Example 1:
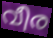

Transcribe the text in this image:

വീര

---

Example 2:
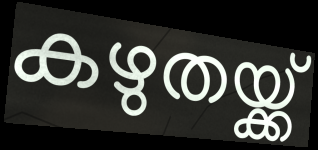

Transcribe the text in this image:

കഴുതയ്ക്ക്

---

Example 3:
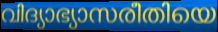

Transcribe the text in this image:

വിദ്യാഭ്യാസരീതിയെ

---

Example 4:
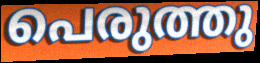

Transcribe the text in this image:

പെരുത്തു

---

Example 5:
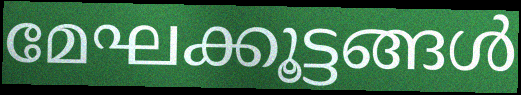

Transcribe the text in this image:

മേഘക്കൂട്ടങ്ങൾ